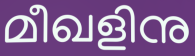
മീഖളിനു